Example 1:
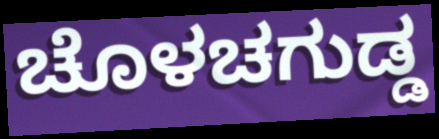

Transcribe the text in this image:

ಚೊಳಚಗುಡ್ಡ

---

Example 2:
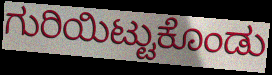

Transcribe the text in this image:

ಗುರಿಯಿಟ್ಟುಕೊಂಡು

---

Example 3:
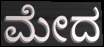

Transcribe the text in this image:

ಮೇದ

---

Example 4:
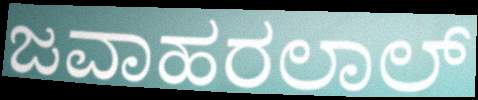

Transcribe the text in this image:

ಜವಾಹರಲಾಲ್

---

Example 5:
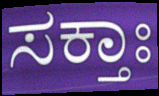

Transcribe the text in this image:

ಸಕ್ತಾಃ